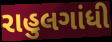
રાહુલગાંધી